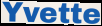
Yvette